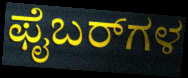
ಫೈಬರ್‌ಗಳ